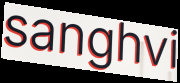
sanghvi